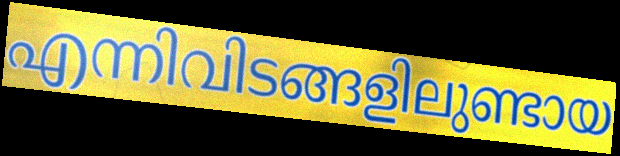
എന്നിവിടങ്ങളിലുണ്ടായ